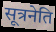
सूत्रनेति